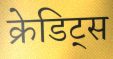
क्रेडिट्स